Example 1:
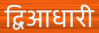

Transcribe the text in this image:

द्विआधारी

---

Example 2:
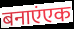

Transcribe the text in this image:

बनाएंएक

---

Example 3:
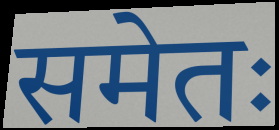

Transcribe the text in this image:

समेतः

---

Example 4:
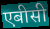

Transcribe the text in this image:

एबीसी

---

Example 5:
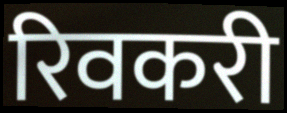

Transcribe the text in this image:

रिवकरी